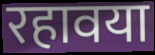
रहावया